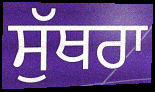
ਸੁੱਥਰਾ